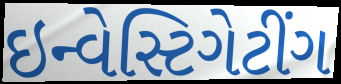
ઇન્વેસ્ટિગેટીંગ